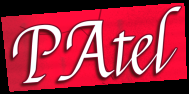
PAtel